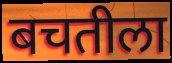
बचतीला